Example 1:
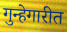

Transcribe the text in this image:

गुन्हेगारीत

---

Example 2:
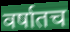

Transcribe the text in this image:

वर्षातच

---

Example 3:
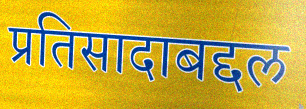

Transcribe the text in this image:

प्रतिसादाबद्दल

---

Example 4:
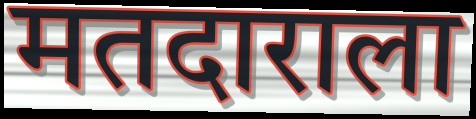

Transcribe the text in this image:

मतदाराला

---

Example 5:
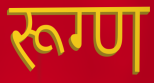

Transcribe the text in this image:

रूग्ण